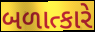
બળાત્કારે